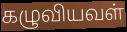
கழுவியவள்